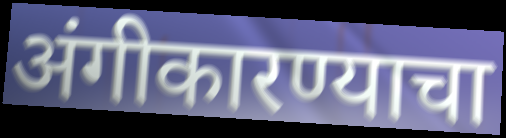
अंगीकारण्याचा